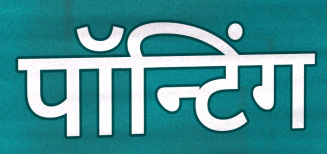
पॉन्टिंग